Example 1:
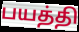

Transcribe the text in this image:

பயத்தி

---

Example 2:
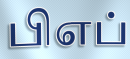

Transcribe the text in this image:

பிஎப்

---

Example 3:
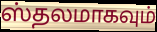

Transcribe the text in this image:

ஸ்தலமாகவும்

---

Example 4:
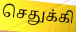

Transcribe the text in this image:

செதுக்கி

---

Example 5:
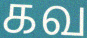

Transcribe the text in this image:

கவ